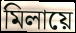
মিলায়ে